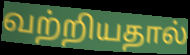
வற்றியதால்